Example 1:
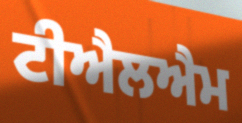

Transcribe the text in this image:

ਟੀਐਲਐਮ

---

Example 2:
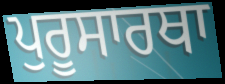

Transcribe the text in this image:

ਪੁਰੂਸਾਰਥਾ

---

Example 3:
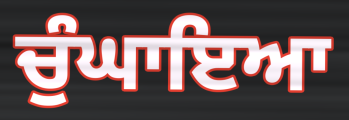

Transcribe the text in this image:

ਚੁੰਘਾਇਆ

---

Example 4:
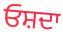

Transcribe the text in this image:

ਓਸ਼ਦਾ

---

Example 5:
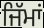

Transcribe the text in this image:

ਜਿੱਮਾਂ